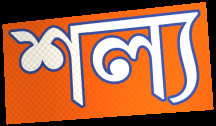
শল্য